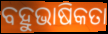
ବହୁଭାଷିକତା